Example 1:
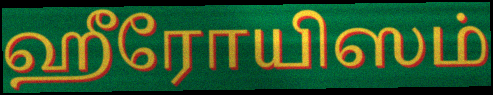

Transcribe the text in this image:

ஹீரோயிஸம்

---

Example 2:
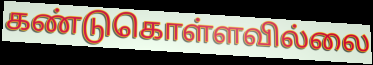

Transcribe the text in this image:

கண்டுகொள்ளவில்லை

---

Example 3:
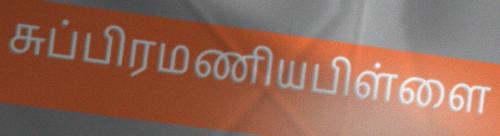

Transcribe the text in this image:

சுப்பிரமணியபிள்ளை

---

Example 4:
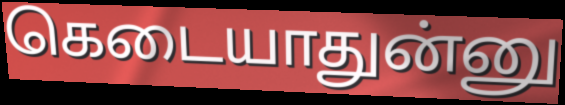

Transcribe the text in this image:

கெடையாதுன்னு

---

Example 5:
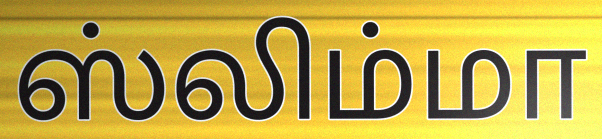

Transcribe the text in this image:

ஸ்லிம்மா